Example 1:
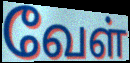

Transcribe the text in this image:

வேள்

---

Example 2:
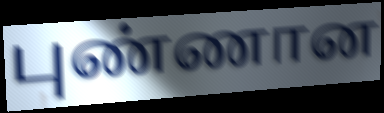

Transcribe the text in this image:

புண்ணான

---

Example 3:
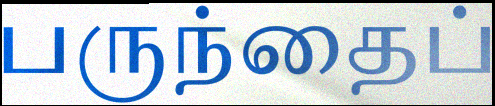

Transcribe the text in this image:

பருந்தைப்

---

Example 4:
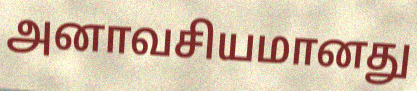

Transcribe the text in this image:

அனாவசியமானது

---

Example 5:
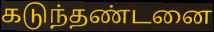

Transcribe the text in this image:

கடுந்தண்டனை